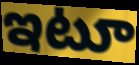
ఇటూ